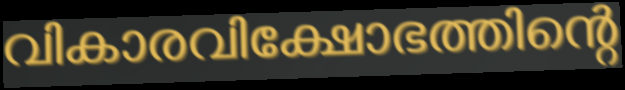
വികാരവിക്ഷോഭത്തിന്റെ